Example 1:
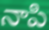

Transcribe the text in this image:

నాపి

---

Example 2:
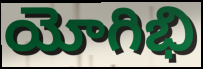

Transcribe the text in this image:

యోగిభి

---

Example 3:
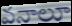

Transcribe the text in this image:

వనాలూ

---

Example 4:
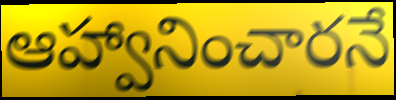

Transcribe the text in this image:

ఆహ్వానించారనే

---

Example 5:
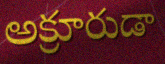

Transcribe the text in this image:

అక్రూరుడా